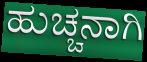
ಹುಚ್ಚನಾಗಿ